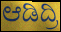
ಆಡಿದ್ರಿ